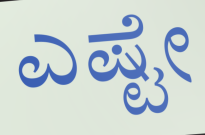
ಎಷ್ಟೇ